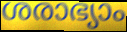
ശരാഭ്യാം